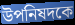
উপনিষদকে